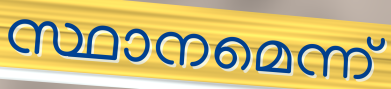
സ്ഥാനമെന്ന്